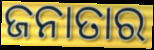
ଜନାତାର